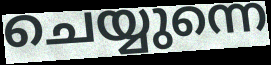
ചെയ്യുന്നെ